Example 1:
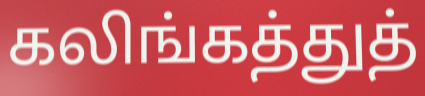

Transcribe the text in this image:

கலிங்கத்துத்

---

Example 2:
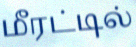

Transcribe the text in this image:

மீரட்டில்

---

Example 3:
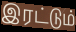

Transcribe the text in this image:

இரட்டும்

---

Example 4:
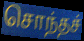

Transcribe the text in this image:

சொந்தச்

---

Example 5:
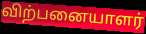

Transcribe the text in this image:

விற்பனையாளர்